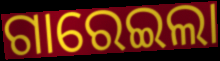
ଗାରେଇଲା